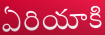
ఏరియాకి